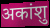
अकांशु